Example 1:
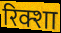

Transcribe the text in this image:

रिक्शा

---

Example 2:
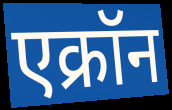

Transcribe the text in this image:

एक्रॉन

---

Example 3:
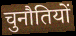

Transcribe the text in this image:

चुनौतियों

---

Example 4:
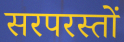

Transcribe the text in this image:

सरपरस्तों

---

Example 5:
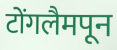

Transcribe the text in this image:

टोंगलैमपून